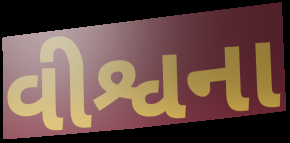
વીશ્વના